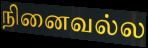
நினைவல்ல